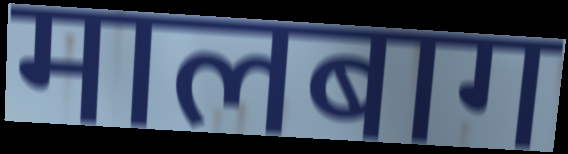
मालबाग